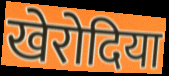
खेरोदिया